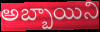
అబ్బాయిని